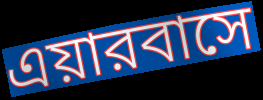
এয়ারবাসে